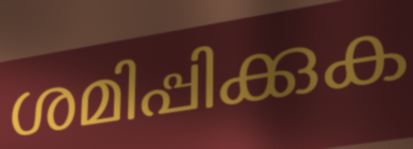
ശമിപ്പിക്കുക